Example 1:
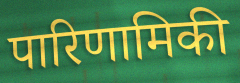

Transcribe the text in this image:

पारिणामिकी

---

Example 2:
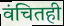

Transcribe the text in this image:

वंचितही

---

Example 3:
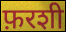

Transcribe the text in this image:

फ़रशी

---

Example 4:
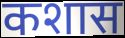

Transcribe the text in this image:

कशास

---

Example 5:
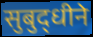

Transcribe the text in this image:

सुबुद्धीने